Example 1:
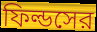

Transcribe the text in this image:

ফিল্ডসের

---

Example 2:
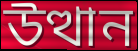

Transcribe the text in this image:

উত্থান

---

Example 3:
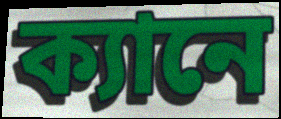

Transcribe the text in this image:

ক্যানে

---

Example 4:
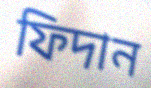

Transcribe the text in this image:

ফিদান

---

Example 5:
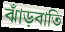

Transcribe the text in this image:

ঝাঁড়বাতি